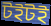
টইটই